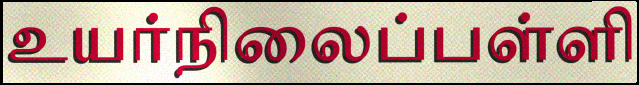
உயர்நிலைப்பள்ளி